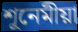
শূনেমীয়া